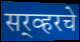
सर्व्हरचे